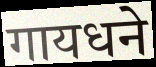
गायधने